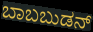
ಬಾಬಬುಡನ್